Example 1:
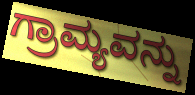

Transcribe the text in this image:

ಗ್ರಾಮ್ಯವನ್ನು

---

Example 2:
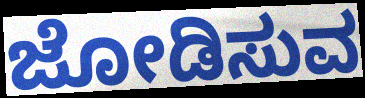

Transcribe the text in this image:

ಜೋಡಿಸುವ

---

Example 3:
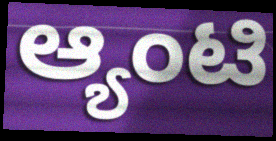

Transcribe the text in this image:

ಆ್ಯಂಟಿ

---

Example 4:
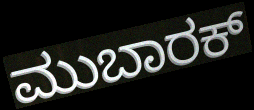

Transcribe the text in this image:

ಮುಬಾರಕ್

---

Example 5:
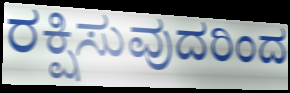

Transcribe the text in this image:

ರಕ್ಷಿಸುವುದರಿಂದ